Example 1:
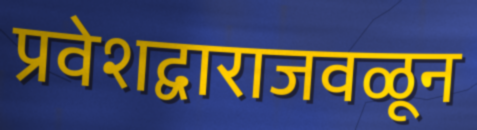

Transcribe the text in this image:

प्रवेशद्वाराजवळून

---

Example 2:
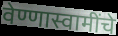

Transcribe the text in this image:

वेण्णास्वामींचे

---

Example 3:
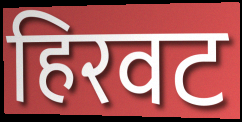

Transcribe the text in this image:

हिरवट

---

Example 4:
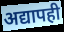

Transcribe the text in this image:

अद्यापही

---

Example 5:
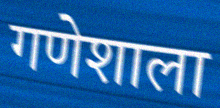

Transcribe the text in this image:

गणेशाला